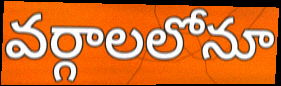
వర్గాలలోనూ